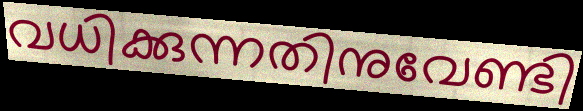
വധിക്കുന്നതിനുവേണ്ടി